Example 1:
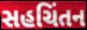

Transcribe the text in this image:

સહચિંતન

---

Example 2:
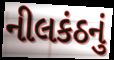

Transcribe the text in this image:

નીલકંઠનું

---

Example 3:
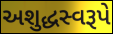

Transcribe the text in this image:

અશુદ્ધસ્વરૂપે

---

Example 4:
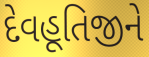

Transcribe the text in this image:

દેવહૂતિજીને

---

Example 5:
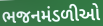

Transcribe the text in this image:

ભજનમંડળીઓ